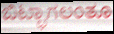
ಬಿಟ್ಟಾಗಲಂತೂ